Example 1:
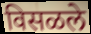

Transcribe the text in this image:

विसळले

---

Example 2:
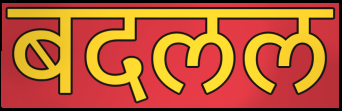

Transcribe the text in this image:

बदलल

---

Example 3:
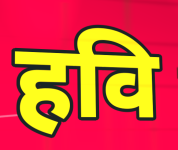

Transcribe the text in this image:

हवि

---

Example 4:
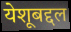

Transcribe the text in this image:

येशूबद्दल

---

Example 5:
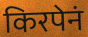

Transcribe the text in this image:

किरपेनं